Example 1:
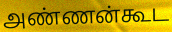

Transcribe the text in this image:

அண்ணன்கூட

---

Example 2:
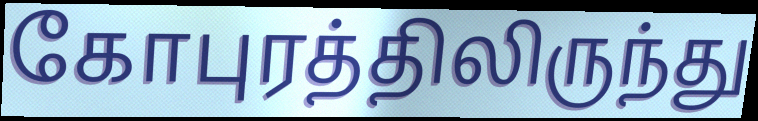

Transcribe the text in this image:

கோபுரத்திலிருந்து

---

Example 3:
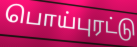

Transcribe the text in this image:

பொய்புரட்டு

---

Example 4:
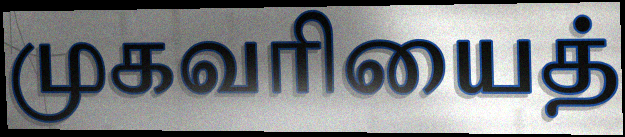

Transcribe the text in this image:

முகவரியைத்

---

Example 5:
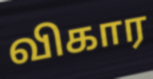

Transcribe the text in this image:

விகார